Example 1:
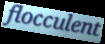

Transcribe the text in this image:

flocculent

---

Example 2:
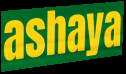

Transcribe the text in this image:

ashaya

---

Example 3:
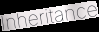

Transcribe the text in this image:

Inheritance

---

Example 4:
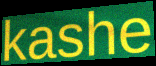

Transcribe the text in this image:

kashe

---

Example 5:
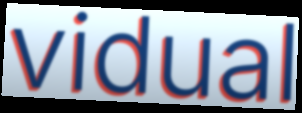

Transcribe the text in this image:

vidual